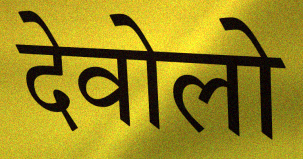
देवोलो